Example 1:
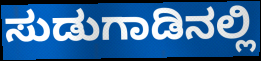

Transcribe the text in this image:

ಸುಡುಗಾಡಿನಲ್ಲಿ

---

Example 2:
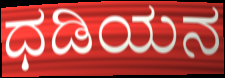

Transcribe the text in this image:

ಧಡಿಯನ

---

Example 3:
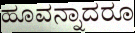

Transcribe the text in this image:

ಹೂವನ್ನಾದರೂ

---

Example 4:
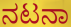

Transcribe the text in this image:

ನಟನಾ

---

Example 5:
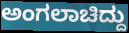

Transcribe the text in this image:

ಅಂಗಲಾಚಿದ್ದು